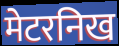
मेटरनिख